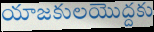
యాజకులయొద్దకు